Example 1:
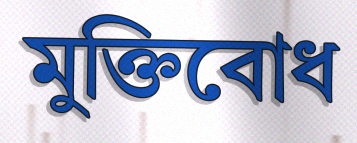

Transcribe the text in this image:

মুক্তিবোধ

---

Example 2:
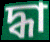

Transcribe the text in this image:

দ্ধা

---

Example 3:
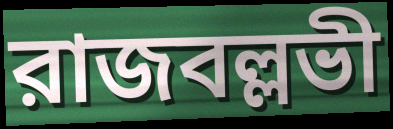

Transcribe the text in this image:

রাজবল্লভী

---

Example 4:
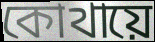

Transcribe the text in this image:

কোথায়ে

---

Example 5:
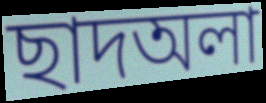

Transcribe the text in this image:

ছাদঅলা